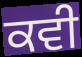
ਕਵੀ